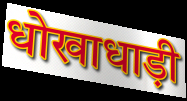
धोखाधाड़ी